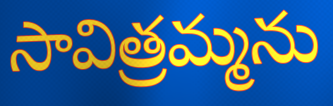
సావిత్రమ్మను